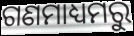
ଗଣମାଧ୍ୟମରୁ